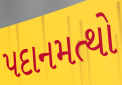
પદાનમત્થો